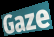
Gaze